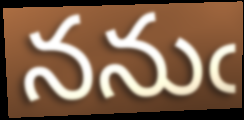
ననుఁ